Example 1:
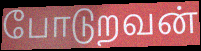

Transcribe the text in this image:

போடுறவன்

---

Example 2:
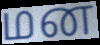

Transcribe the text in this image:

மன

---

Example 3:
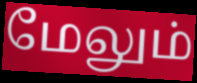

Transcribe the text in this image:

மேலும்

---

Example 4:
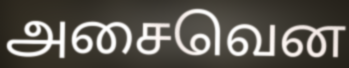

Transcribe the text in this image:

அசைவென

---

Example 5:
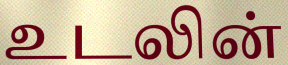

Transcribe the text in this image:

உடலின்